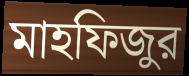
মাহফিজুর